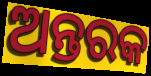
ଅନ୍ତରକ